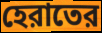
হেরাতের